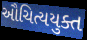
ઔચિત્યયુક્ત